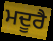
ਮਦੂਰੈ